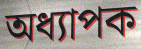
অধ্যাপক